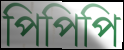
পিপিপি